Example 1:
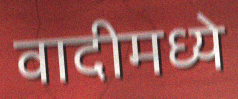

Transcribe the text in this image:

वादीमध्ये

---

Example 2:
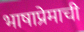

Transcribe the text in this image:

भाषाप्रेमाची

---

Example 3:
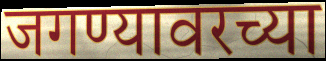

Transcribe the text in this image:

जगण्यावरच्या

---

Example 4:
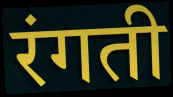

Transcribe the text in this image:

रंगती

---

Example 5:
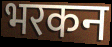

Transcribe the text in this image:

भरकन